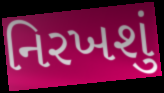
નિરખશું